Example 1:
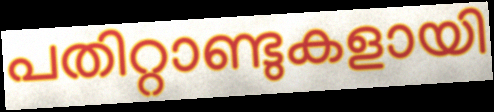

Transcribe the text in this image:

പതിറ്റാണ്ടുകളായി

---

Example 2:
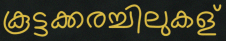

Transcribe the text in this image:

കൂട്ടക്കരച്ചിലുകള്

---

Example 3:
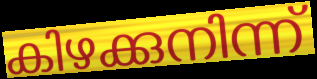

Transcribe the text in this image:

കിഴക്കുനിന്ന്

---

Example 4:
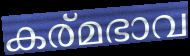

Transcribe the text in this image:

കര്മഭാവ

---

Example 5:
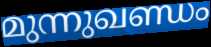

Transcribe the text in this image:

മുന്നുഖണ്ഡം